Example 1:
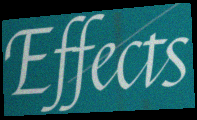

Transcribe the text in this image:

Effects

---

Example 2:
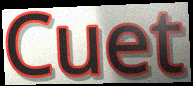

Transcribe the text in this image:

Cuet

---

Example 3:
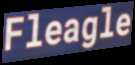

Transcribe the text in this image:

Fleagle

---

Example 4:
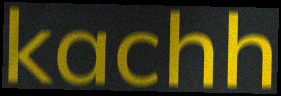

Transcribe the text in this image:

kachh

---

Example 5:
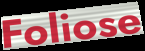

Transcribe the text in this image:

Foliose